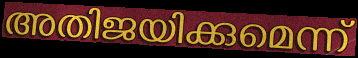
അതിജയിക്കുമെന്ന്